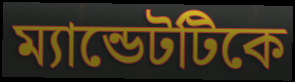
ম্যান্ডেটটিকে